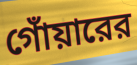
গোঁয়ারের